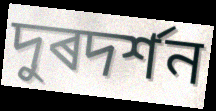
দুৰদৰ্শন